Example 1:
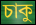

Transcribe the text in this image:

চাকু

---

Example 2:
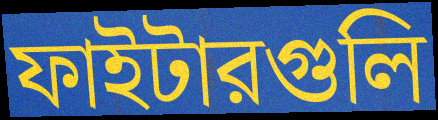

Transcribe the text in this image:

ফাইটারগুলি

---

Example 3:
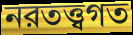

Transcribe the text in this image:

নরতত্ত্বগত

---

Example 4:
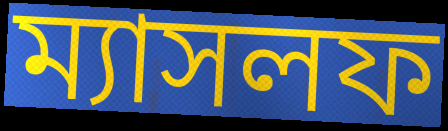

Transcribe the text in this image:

ম্যাসলফ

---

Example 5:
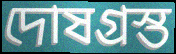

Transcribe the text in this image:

দোষগ্রস্ত